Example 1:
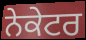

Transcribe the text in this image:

ਨੇਕੇਟਰ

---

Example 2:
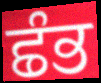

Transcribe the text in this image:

ਛੰਭ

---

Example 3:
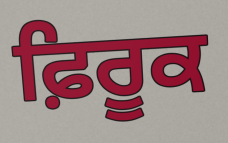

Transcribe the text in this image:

ਫ਼ਿਰੂਕ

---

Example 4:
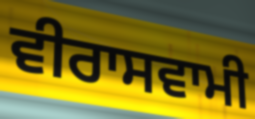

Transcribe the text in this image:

ਵੀਰਾਸਵਾਮੀ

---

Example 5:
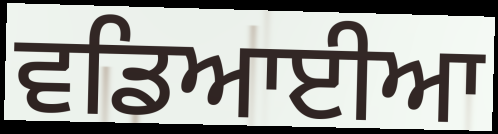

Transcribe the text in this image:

ਵਡਿਆਈਆ